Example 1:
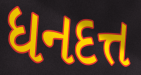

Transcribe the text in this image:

ધનદત્ત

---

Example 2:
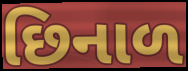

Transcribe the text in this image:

છિનાળ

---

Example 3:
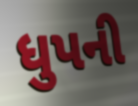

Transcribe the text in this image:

ધુપની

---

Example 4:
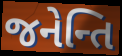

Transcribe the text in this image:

જનેન્તિ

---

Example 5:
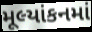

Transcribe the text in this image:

મૂલ્યાંકનમાં